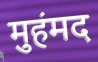
मुहंमद